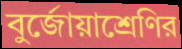
বুর্জোয়াশ্রেণির